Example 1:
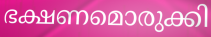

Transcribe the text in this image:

ഭക്ഷണമൊരുക്കി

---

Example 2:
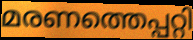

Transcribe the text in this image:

മരണത്തെപ്പറ്റി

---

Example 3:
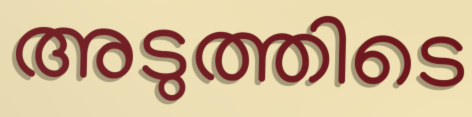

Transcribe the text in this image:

അടുത്തിടെ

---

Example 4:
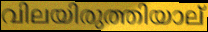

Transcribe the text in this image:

വിലയിരുത്തിയാല്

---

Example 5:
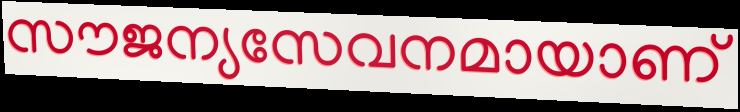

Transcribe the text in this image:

സൗജന്യസേവനമായാണ്